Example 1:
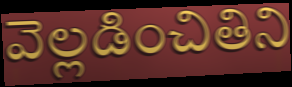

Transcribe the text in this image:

వెల్లడించితిని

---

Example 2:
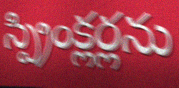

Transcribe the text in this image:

స్ప్రింక్లర్లను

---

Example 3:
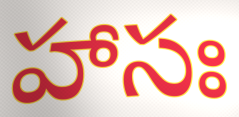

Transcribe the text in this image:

హాసః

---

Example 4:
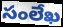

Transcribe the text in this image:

సంలేఖ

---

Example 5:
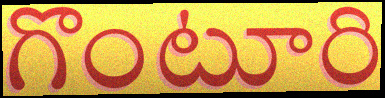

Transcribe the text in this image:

గొంటూరి